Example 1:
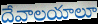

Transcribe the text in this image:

దేవాలయాలూ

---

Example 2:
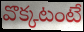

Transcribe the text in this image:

వొక్కటంటే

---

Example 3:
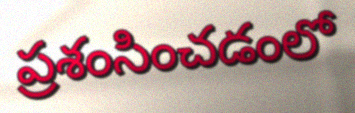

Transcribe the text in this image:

ప్రశంసించడంలో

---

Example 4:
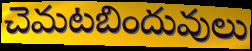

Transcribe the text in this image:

చెమటబిందువులు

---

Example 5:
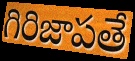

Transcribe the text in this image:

గిరిజాపతే